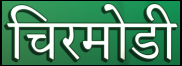
चिरमोडी